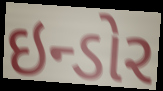
ઇન્ડોર